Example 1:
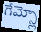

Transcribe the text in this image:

గేమ్స్లో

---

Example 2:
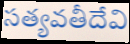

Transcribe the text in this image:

సత్యవతీదేవి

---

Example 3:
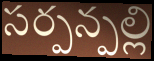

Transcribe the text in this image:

సర్పన్పల్లి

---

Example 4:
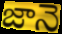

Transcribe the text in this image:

జానె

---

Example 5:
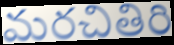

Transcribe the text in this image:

మరచితిరి